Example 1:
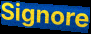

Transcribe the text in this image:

Signore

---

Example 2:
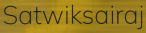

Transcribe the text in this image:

Satwiksairaj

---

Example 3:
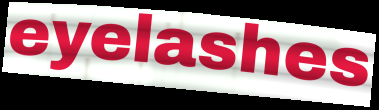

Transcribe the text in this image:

eyelashes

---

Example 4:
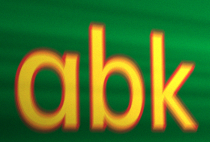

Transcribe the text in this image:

abk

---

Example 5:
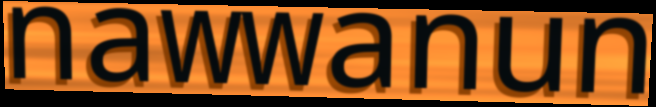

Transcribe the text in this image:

nawwanun